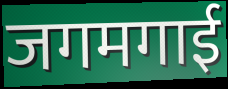
जगमगाई